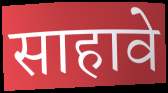
साहावे